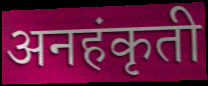
अनहंकृती